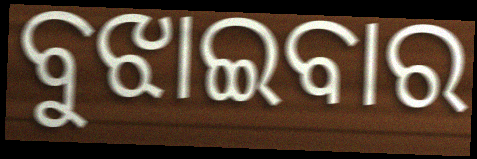
ବୁଝାଇବାର